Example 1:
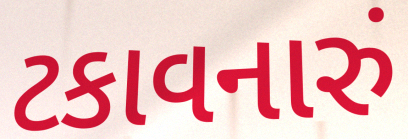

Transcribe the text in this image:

ટકાવનારું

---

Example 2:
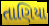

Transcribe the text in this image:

તાણિયા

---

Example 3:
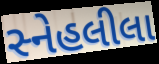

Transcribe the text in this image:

સ્નેહલીલા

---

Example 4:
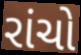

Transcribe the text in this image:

રાંચો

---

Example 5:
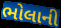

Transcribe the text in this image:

ભોલાની